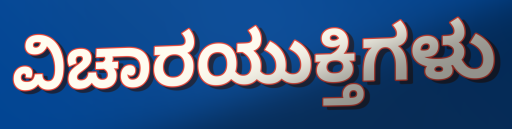
ವಿಚಾರಯುಕ್ತಿಗಳು